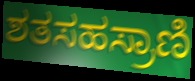
ಶತಸಹಸ್ರಾಣಿ